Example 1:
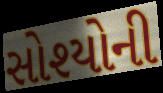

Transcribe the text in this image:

સોશ્યોની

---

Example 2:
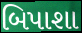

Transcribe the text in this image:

બિપાશા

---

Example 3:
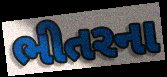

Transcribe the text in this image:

ભીતરના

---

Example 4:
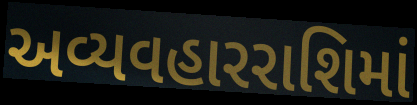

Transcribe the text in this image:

અવ્યવહારરાશિમાં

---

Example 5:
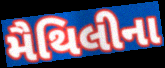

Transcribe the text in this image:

મૈથિલીના